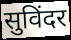
सुविंदर